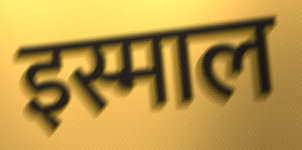
इस्माल